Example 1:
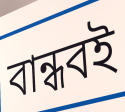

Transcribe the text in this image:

বান্ধবই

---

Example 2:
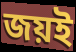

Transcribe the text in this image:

জয়ই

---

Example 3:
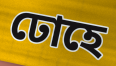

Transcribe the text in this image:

ঢোহে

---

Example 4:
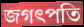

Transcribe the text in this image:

জগৎপতি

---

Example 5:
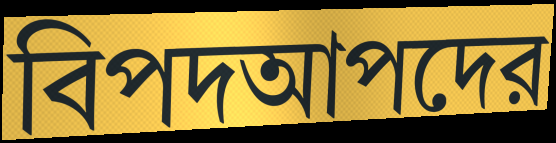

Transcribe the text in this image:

বিপদআপদের